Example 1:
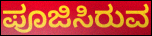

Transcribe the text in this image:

ಪೂಜಿಸಿರುವ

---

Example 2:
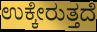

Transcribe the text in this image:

ಉಕ್ಕೇರುತ್ತದೆ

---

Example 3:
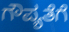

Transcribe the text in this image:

ಗೌಪ್ಯತೆಗೆ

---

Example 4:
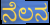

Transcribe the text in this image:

ನೆಲನ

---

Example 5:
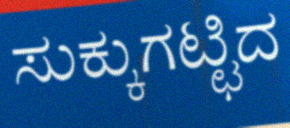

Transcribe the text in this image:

ಸುಕ್ಕುಗಟ್ಟಿದ